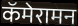
कॅमेरामन